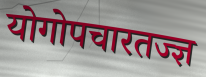
योगोपचारतज्ज्ञ